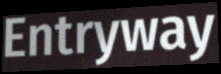
Entryway